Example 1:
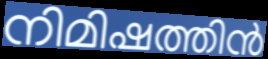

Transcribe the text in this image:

നിമിഷത്തിൻ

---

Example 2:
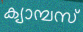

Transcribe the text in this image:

ക്യാമ്പസ്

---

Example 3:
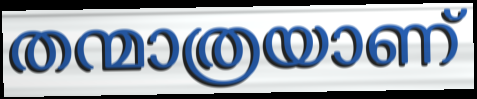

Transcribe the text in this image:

തന്മാത്രയാണ്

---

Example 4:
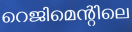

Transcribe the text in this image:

റെജിമെന്റിലെ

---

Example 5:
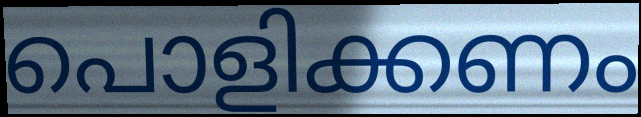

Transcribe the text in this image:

പൊളിക്കണം